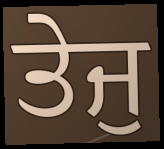
ਤੇਜੁ